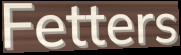
Fetters